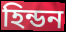
হিন্ডন